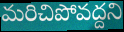
మరిచిపోవద్దని